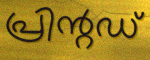
പ്രിന്റഡ്